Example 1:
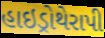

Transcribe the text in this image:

હાઇડ્રોથેરાપી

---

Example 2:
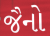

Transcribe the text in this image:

જૈનો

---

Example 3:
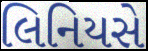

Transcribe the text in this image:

લિનિયસે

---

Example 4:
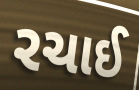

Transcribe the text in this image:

રચાઈ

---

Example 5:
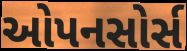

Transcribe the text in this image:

ઓપનસોર્સ